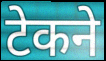
टेकने